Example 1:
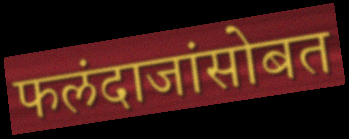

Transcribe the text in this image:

फलंदाजांसोबत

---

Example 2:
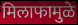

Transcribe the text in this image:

मिलाफामुळे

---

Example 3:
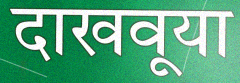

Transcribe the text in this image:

दाखवूया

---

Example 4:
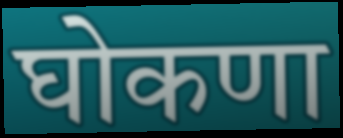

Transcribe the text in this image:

घोकणा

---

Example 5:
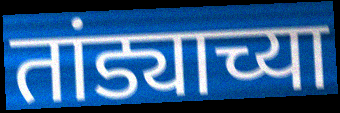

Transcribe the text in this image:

तांड्याच्या